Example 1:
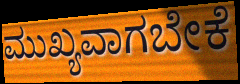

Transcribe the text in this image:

ಮುಖ್ಯವಾಗಬೇಕೆ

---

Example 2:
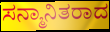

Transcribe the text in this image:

ಸನ್ಮಾನಿತರಾದ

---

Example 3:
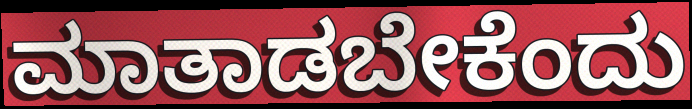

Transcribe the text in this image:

ಮಾತಾಡಬೇಕೆಂದು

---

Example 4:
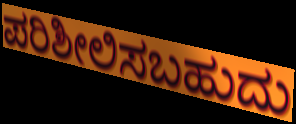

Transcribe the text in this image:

ಪರಿಶೀಲಿಸಬಹುದು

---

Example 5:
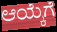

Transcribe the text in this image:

ಆಯ್ಕೆಗೆ